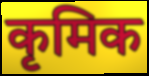
कृमिक